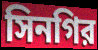
সিনগির